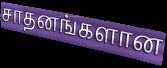
சாதனங்களான